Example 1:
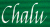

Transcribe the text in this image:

Chalu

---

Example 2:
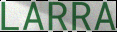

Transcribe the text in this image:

LARRA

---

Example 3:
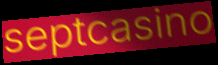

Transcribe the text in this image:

septcasino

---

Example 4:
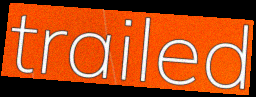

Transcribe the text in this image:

trailed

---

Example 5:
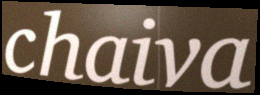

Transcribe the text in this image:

chaiva